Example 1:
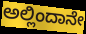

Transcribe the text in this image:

ಅಲ್ಲಿಂದಾನೇ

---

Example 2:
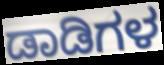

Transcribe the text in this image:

ಡಾಡಿಗಳ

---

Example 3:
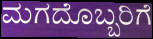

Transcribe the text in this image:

ಮಗದೊಬ್ಬರಿಗೆ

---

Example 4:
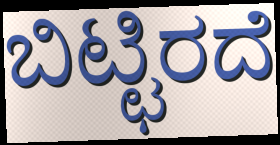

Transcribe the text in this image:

ಬಿಟ್ಟಿರದೆ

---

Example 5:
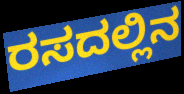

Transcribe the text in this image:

ರಸದಲ್ಲಿನ